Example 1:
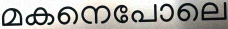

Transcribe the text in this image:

മകനെപോലെ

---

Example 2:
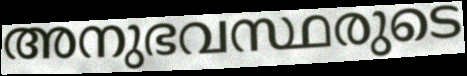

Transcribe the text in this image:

അനുഭവസ്ഥരുടെ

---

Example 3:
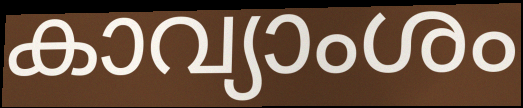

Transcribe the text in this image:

കാവ്യാംശം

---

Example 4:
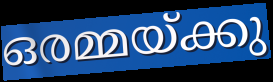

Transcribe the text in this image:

ഒരമ്മയ്ക്കു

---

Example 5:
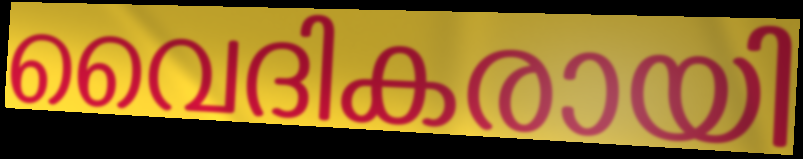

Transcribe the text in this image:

വൈദികരായി